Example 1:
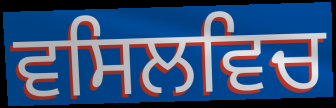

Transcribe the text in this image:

ਵਸਿਲਵਿਚ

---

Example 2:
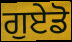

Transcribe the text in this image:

ਗੁਏਡੋ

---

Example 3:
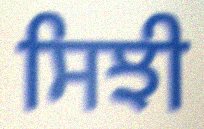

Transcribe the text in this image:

ਸਿਝੀ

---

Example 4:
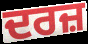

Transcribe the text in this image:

ਦਰਜ਼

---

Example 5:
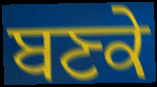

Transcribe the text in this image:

ਬਣਕੇ